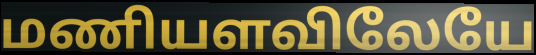
மணியளவிலேயே